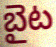
బైట